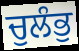
ਚੁਲੰਭੁ